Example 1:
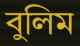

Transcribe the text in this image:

বুলিম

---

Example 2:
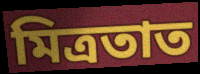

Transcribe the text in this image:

মিত্ৰতাত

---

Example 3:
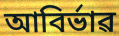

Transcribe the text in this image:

আবিৰ্ভাৱ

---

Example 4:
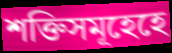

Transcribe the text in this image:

শক্তিসমূহেহে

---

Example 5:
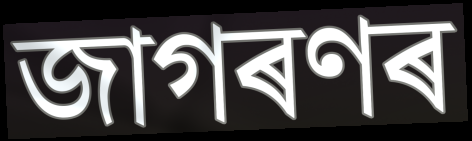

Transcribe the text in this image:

জাগৰণৰ